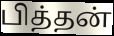
பித்தன்